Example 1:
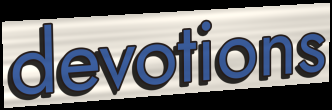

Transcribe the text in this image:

devotions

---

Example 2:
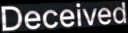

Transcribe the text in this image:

Deceived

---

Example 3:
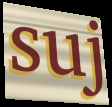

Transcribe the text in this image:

suj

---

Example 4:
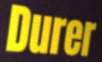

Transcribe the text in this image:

Durer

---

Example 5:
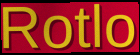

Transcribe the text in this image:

Rotlo